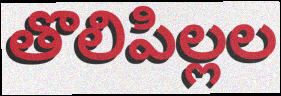
తొలిపిల్లల